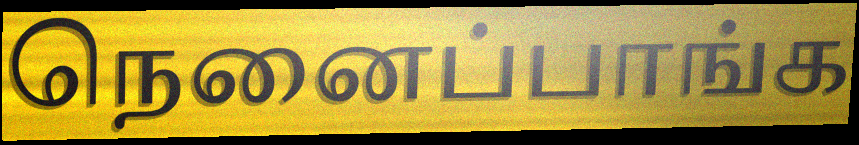
நெனைப்பாங்க